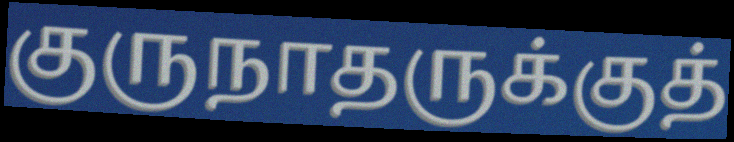
குருநாதருக்குத்